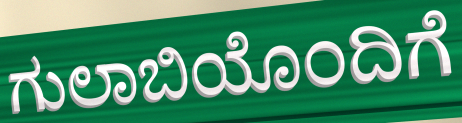
ಗುಲಾಬಿಯೊಂದಿಗೆ